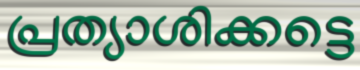
പ്രത്യാശിക്കട്ടെ